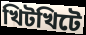
খিটখিটে